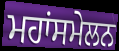
ਮਹਾਂਸਮੇਲਨ